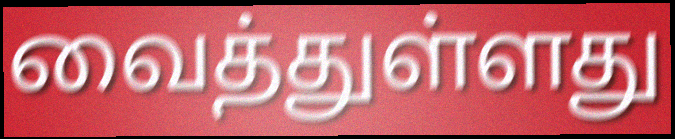
வைத்துள்ளது